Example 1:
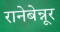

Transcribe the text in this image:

रानेबेन्नूर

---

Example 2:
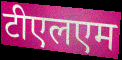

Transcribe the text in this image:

टीएलएम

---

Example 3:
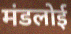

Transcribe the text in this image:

मंडलोई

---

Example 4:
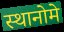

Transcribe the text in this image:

स्थानोमे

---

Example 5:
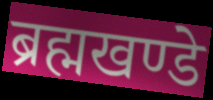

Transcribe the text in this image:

ब्रह्मखण्डे